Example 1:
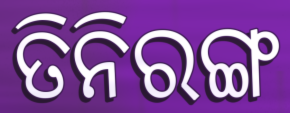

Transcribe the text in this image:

ତିନିରଙ୍ଗ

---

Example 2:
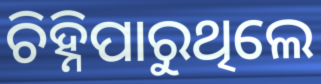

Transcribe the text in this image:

ଚିହ୍ନିପାରୁଥିଲେ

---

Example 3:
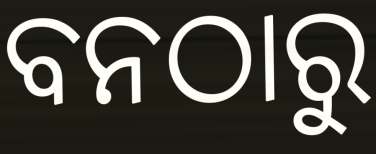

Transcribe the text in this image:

ବନଠାରୁ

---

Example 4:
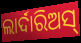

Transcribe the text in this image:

ଲାର୍ଦାରିଅସ୍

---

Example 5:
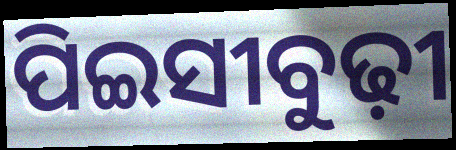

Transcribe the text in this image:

ପିଇସୀବୁଢ଼ୀ